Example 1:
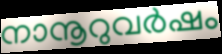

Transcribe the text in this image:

നാനൂറുവർഷം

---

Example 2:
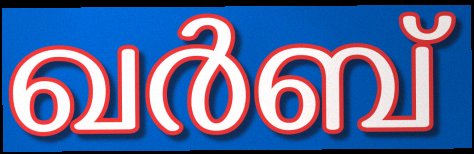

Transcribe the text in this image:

ഖർബ്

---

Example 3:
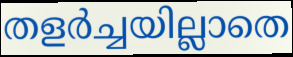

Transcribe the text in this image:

തളർച്ചയില്ലാതെ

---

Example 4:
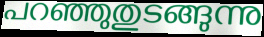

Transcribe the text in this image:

പറഞ്ഞുതുടങ്ങുന്നു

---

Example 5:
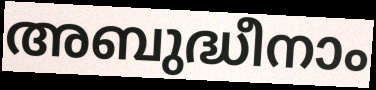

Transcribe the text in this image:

അബുദ്ധീനാം